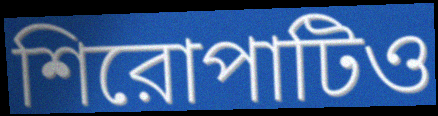
শিরোপাটিও